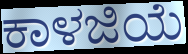
ಕಾಳಜಿಯೆ